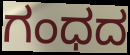
ಗಂಧದ